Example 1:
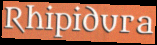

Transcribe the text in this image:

Rhipidura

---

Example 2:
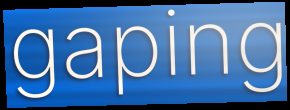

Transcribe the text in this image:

gaping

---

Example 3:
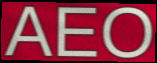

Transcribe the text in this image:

AEO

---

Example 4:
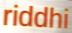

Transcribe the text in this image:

riddhi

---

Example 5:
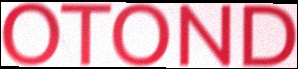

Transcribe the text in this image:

OTOND